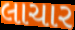
લાચાર